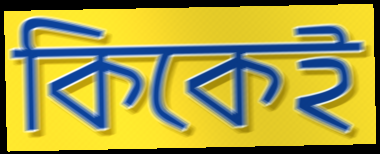
কিকেই